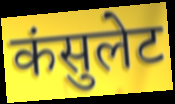
कंसुलेट